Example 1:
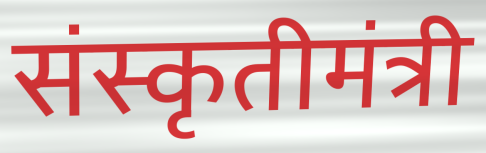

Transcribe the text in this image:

संस्कृतीमंत्री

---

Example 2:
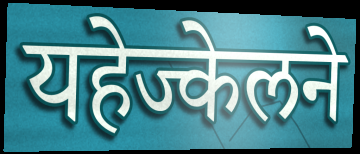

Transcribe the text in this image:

यहेज्केलने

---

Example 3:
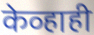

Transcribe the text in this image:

केव्हाही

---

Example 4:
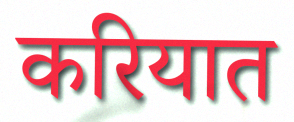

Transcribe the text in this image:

करियात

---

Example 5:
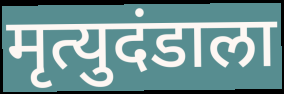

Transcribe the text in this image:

मृत्युदंडाला